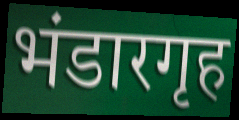
भंडारगृह